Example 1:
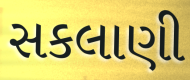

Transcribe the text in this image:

સકલાણી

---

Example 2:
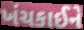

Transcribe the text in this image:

ખંચકાઈને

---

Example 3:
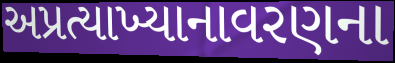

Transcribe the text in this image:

અપ્રત્યાખ્યાનાવરણના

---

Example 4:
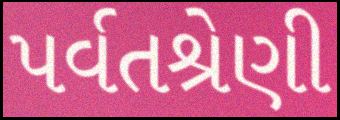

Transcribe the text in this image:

પર્વતશ્રેણી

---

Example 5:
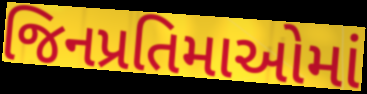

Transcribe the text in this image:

જિનપ્રતિમાઓમાં